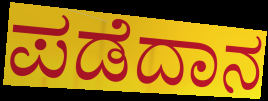
ಪಡೆದಾನ